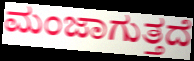
ಮಂಜಾಗುತ್ತದೆ